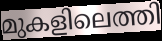
മുകളിലെത്തി